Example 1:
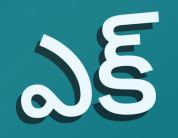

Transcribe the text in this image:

ఎక్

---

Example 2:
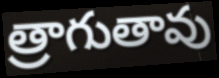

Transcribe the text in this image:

త్రాగుతావు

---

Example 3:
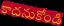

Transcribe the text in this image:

కాదనుకోండి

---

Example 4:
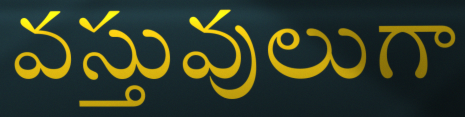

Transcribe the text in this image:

వస్తువులుగా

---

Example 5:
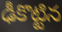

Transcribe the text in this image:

ఢీకొట్టిన